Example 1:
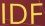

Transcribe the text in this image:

IDF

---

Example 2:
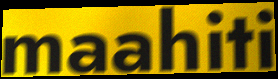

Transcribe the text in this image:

maahiti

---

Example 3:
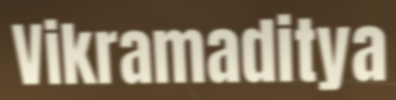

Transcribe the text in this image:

Vikramaditya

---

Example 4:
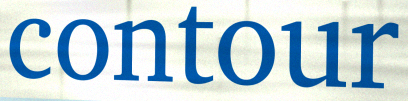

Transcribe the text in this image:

contour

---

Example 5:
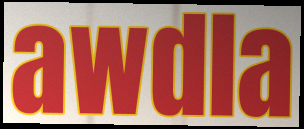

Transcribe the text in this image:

awdla